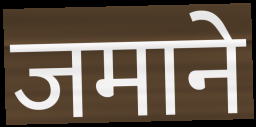
जमाने